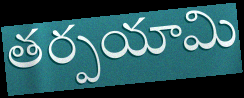
తర్పయామి